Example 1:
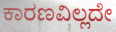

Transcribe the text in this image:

ಕಾರಣವಿಲ್ಲದೇ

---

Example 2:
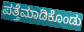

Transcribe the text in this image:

ಪತ್ತೆಮಾಡಿಕೊಂಡು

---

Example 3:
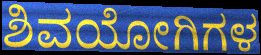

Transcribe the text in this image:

ಶಿವಯೋಗಿಗಳ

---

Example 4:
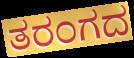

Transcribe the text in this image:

ತರಂಗದ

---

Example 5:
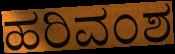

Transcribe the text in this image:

ಹರಿವಂಶ